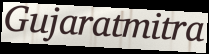
Gujaratmitra